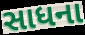
સાધના